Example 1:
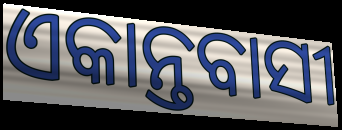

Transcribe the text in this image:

ଏକାନ୍ତବାସୀ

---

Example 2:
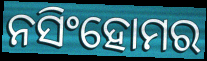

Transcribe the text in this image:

ନସିଂହୋମର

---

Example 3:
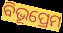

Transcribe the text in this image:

ବିଭୂପ୍ରେମ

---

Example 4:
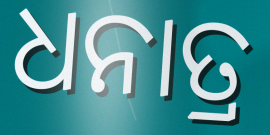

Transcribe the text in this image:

ଧନାତ୍ର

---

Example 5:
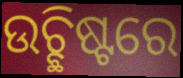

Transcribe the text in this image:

ଉଚ୍ଛିଷ୍ଟରେ